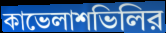
কাভেলাশভিলির